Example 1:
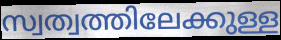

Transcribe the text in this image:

സ്വത്വത്തിലേക്കുള്ള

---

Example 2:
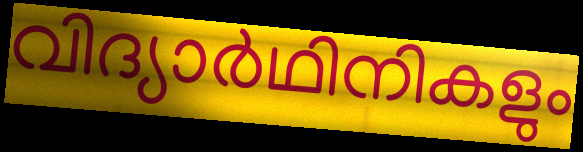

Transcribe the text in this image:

വിദ്യാർഥിനികളും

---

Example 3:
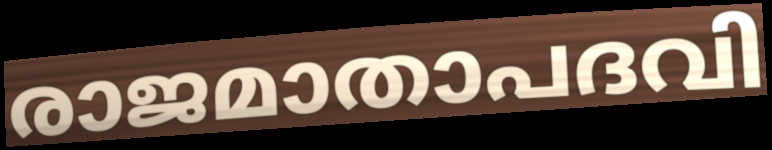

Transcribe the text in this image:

രാജമാതാപദവി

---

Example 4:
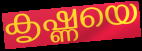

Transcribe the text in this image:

കൃഷ്ണയെ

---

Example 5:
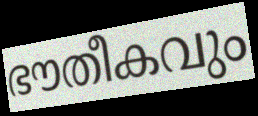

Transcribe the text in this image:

ഭൗതീകവും